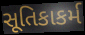
સૂતિકાકર્મ